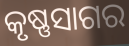
କୃଷ୍ଣସାଗର